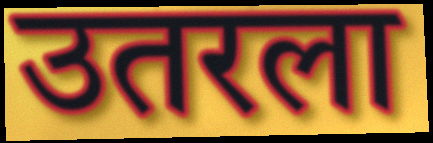
उतरला